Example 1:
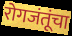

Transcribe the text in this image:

रोगजंतूंचा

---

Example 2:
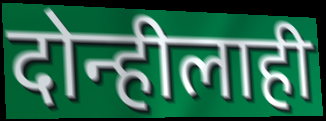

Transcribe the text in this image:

दोन्हीलाही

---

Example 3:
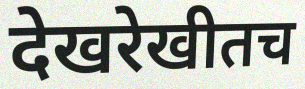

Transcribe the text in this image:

देखरेखीतच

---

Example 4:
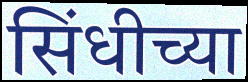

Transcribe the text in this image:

सिंधीच्या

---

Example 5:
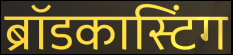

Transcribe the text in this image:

ब्रॉडकास्टिंग